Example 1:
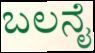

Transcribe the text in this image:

ಬಲನೈ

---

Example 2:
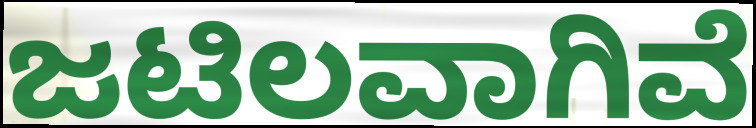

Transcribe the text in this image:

ಜಟಿಲವಾಗಿವೆ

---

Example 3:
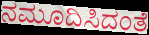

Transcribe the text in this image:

ನಮೂದಿಸಿದಂತೆ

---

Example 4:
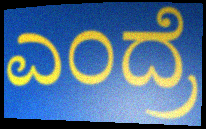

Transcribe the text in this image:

ಎಂದ್ರೆ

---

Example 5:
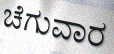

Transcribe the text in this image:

ಚೆಗುವಾರ